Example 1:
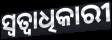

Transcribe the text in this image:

ସ୍ଵତ୍ୱାଧିକାରୀ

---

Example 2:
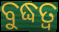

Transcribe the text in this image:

ବୁଦ୍ଧତ୍ୱ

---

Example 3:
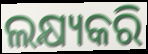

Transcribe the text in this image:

ଲକ୍ଷ୍ୟକରି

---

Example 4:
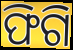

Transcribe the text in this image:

ଫିଗି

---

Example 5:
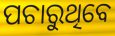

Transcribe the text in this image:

ପଚାରୁଥିବେ